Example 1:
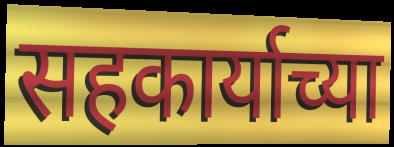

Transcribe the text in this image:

सहकार्याच्या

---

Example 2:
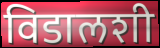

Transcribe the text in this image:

विडालशी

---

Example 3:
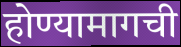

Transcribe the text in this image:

होण्यामागची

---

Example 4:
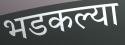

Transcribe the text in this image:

भडकल्या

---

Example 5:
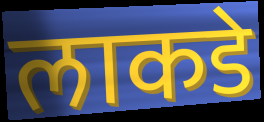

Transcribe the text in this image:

लाकडे